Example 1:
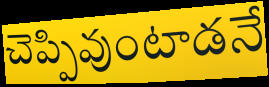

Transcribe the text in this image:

చెప్పివుంటాడనే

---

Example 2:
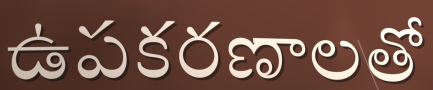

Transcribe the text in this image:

ఉపకరణాలతో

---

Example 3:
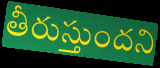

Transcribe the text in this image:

తీరుస్తుందని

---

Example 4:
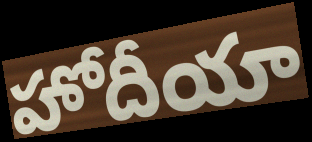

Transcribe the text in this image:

హోదీయా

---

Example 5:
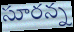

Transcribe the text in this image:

సూరన్న